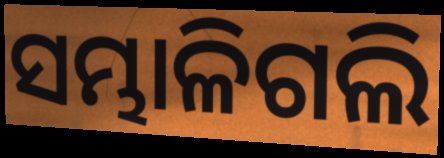
ସମ୍ଭାଳିଗଲି